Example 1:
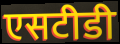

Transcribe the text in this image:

एसटीडी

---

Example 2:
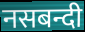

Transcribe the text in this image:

नसबन्दी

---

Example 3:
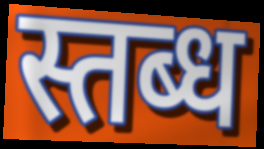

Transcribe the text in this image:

स्तब्ध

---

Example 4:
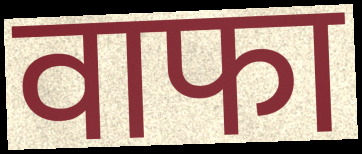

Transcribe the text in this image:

वाफा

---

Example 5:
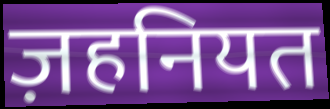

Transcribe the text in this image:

ज़हनियत